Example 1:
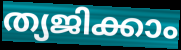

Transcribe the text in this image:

ത്യജിക്കാം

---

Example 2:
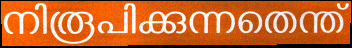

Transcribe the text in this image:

നിരൂപിക്കുന്നതെന്ത്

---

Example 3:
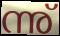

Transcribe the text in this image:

ന്നു്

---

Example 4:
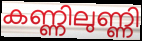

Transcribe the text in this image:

കണ്ണിലുണ്ണി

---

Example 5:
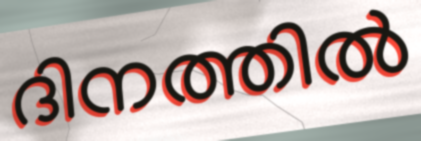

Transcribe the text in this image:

ദിനത്തിൽ